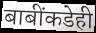
बाबींकडेही